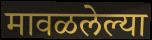
मावळलेल्या